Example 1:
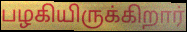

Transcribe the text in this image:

பழகியிருக்கிறார்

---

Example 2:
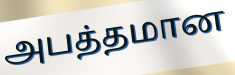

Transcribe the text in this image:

அபத்தமான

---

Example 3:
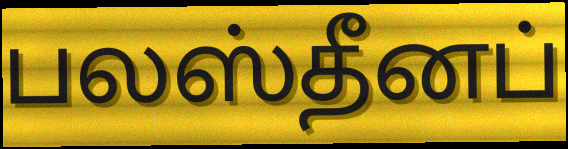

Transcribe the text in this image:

பலஸ்தீனப்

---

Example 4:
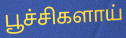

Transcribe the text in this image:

பூச்சிகளாய்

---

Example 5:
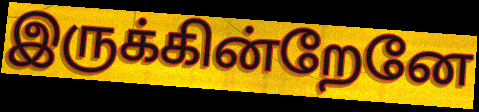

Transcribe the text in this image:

இருக்கின்றேனே